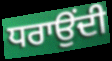
ਧਰਾਉਂਦੀ